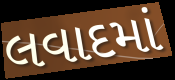
લવાદમાં